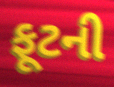
ફૂટની